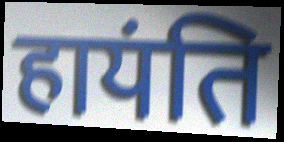
हायंति